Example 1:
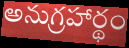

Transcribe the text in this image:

అనుగ్రహార్థం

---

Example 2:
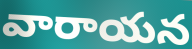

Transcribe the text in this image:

వారాయన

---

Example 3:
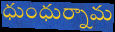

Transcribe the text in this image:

ధుంధుర్నామ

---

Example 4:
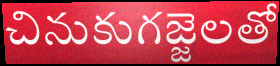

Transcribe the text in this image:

చినుకుగజ్జెలతో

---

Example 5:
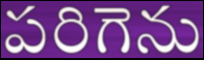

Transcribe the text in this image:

పరిగెను